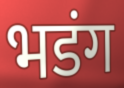
भडंग